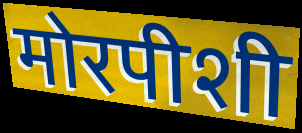
मोरपीशी